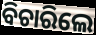
ବିଚାରିଲେ